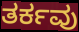
ತರ್ಕವು